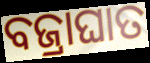
ବଜ୍ରାଘାତ